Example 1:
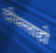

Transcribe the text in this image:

रद़ीयल्लाहो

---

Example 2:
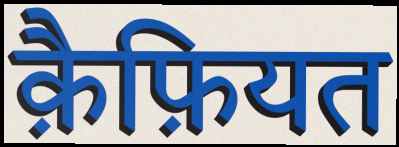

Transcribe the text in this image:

क़ैफ़ियत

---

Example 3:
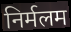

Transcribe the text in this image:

निर्मलम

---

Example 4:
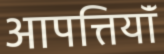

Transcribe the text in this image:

आपत्तियॉं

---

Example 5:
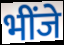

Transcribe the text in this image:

भींजे